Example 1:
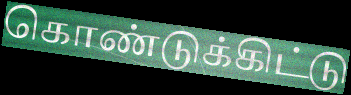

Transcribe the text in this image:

கொண்டுக்கிட்டு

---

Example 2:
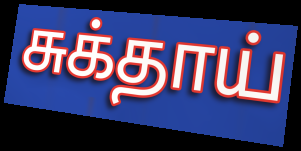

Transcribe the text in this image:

சுக்தாய்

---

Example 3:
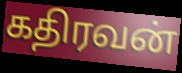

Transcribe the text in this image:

கதிரவன்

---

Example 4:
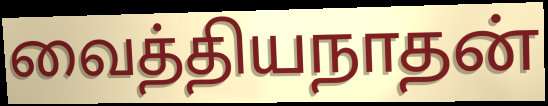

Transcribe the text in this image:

வைத்தியநாதன்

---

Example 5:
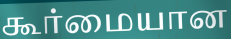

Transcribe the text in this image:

கூர்மையான